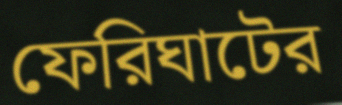
ফেরিঘাটের